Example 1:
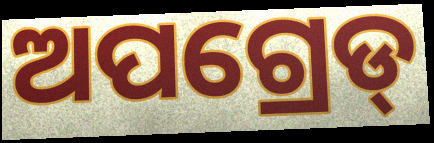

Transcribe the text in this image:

ଅପଗ୍ରେଡ୍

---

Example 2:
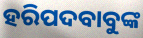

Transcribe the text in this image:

ହରିପଦବାବୁଙ୍କ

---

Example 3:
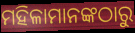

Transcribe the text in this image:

ମହିଳାମାନଙ୍କଠାରୁ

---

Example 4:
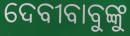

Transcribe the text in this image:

ଦେବୀବାବୁଙ୍କୁ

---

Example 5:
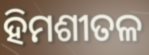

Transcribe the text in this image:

ହିମଶୀତଳ